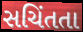
સચિંતતા